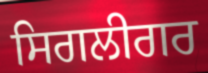
ਸਿਗਲੀਗਰ